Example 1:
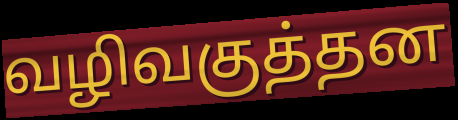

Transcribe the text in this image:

வழிவகுத்தன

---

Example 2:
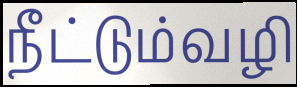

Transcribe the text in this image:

நீட்டும்வழி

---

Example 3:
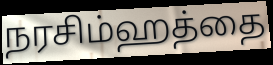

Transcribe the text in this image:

நரசிம்ஹத்தை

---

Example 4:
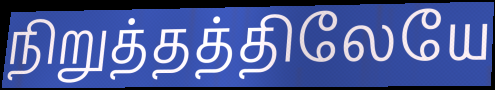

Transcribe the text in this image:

நிறுத்தத்திலேயே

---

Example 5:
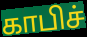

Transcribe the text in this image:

காபிச்